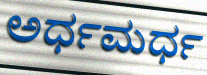
ಅರ್ಧಮರ್ಧ